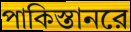
পাকিস্তানরে